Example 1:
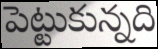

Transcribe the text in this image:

పెట్టుకున్నది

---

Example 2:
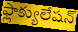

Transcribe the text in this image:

ఫ్లాక్యులేషన్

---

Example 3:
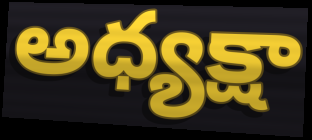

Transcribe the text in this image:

అధ్యక్షా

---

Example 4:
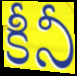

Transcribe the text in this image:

కీనీ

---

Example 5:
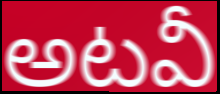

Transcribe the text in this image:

అటవీ